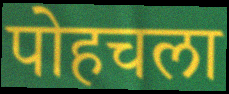
पोहचला